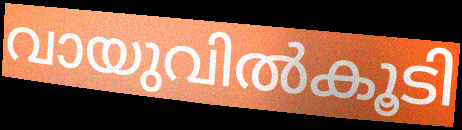
വായുവിൽകൂടി